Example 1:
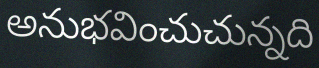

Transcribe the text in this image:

అనుభవించుచున్నది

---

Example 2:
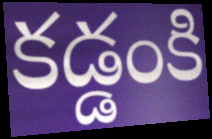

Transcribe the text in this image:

కడ్డంకి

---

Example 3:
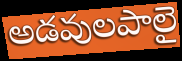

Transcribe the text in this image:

అడవులపాలై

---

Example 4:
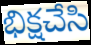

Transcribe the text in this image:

భిక్షచేసి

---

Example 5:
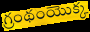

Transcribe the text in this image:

గ్రంథంయొక్క